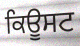
ਕਿਊਸਟ